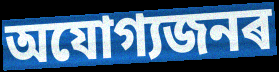
অযোগ্যজনৰ